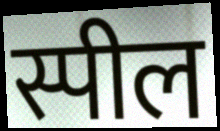
स्पील